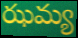
ఝమ్య